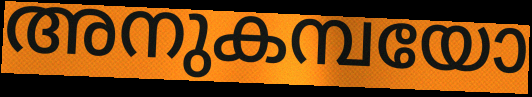
അനുകമ്പയോ